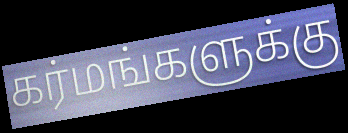
கர்மங்களுக்கு